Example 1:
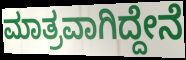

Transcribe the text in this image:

ಮಾತ್ರವಾಗಿದ್ದೇನೆ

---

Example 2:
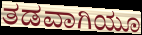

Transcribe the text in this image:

ತಡವಾಗಿಯೂ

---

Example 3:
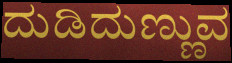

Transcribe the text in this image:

ದುಡಿದುಣ್ಣುವ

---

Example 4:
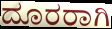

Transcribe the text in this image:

ದೂರರಾಗಿ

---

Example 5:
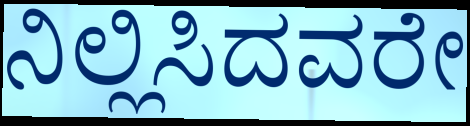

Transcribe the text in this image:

ನಿಲ್ಲಿಸಿದವರೇ